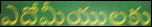
ఎదోమీయులకు